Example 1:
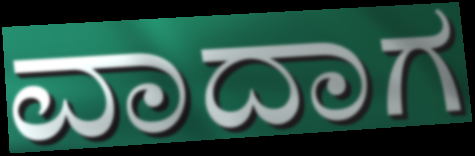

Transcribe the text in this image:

ವಾದಾಗ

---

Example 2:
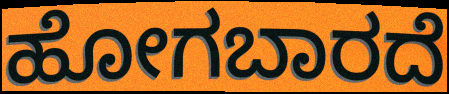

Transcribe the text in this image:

ಹೋಗಬಾರದೆ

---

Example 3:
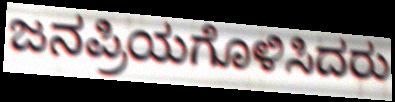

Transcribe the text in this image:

ಜನಪ್ರಿಯಗೊಳಿಸಿದರು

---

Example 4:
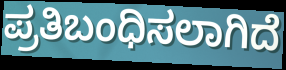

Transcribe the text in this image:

ಪ್ರತಿಬಂಧಿಸಲಾಗಿದೆ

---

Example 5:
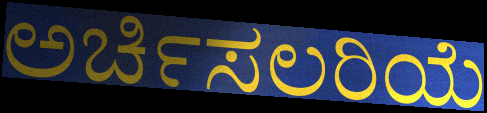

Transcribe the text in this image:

ಅರ್ಚಿಸಲರಿಯೆ